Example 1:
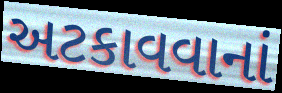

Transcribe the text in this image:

અટકાવવાનાં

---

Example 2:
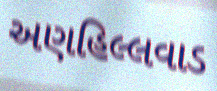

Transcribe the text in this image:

અણહિલ્લવાડ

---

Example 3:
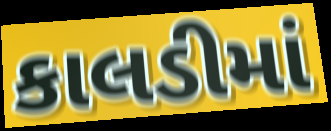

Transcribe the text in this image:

કાલડીમાં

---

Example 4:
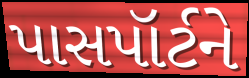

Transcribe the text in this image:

પાસપૉર્ટને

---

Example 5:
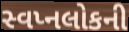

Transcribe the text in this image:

સ્વપ્નલોકની